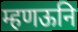
म्हणऊनि